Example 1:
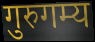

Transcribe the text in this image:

गुरुगम्य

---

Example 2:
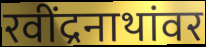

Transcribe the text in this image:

रवींद्रनाथांवर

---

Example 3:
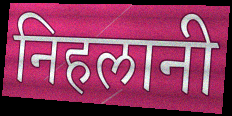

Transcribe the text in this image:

निहलानी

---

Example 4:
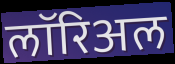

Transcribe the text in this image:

लॉरिअल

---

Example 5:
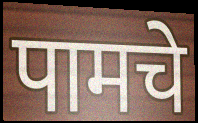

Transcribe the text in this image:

पामचे